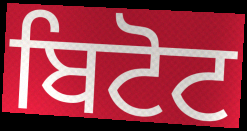
ਬਿਟੋਟ